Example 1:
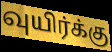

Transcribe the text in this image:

வுயிர்க்கு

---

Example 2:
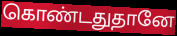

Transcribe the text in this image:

கொண்டதுதானே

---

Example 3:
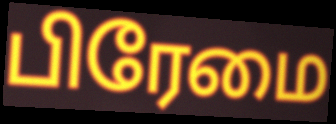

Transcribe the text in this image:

பிரேமை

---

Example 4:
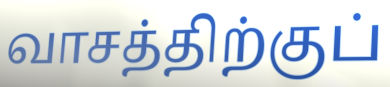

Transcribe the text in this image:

வாசத்திற்குப்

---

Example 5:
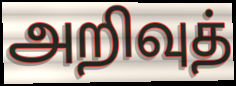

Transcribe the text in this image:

அறிவுத்